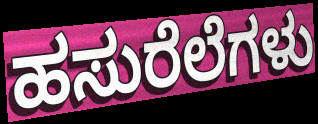
ಹಸುರೆಲೆಗಳು